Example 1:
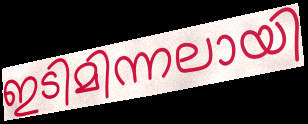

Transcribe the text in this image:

ഇടിമിന്നലായി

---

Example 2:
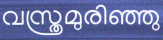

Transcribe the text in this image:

വസ്ത്രമുരിഞ്ഞു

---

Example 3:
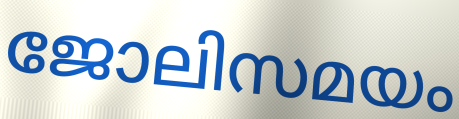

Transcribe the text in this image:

ജോലിസമയം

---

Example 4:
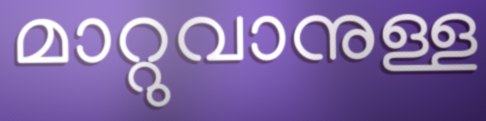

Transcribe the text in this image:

മാറ്റുവാനുള്ള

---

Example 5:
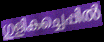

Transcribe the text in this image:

ഗുളികച്ചെപ്പിൽ